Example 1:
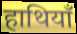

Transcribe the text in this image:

हाथियाँ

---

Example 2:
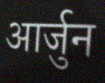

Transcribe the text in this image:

आर्जुन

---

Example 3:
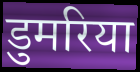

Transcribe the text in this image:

डुमरिया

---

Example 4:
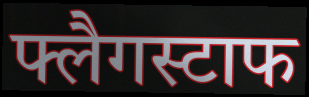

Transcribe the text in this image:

फ्लैगस्टाफ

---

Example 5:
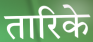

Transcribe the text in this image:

तारिके